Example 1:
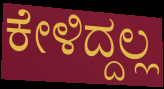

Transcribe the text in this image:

ಕೇಳಿದ್ದಲ್ಲ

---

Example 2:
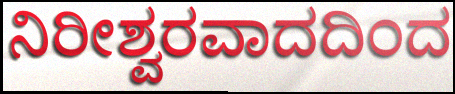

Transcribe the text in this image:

ನಿರೀಶ್ವರವಾದದಿಂದ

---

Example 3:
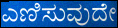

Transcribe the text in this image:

ಎಣಿಸುವುದೇ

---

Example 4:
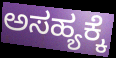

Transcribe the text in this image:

ಅಸಹ್ಯಕ್ಕೆ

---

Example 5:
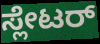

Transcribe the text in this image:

ಸ್ಲೇಟರ್